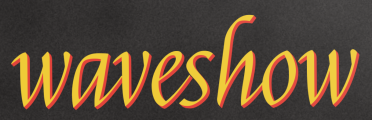
waveshow